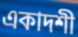
একাদশী